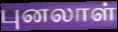
புனலாள்